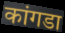
कांगडा